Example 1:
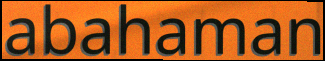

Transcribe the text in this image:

abahaman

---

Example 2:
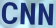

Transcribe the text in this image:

CNN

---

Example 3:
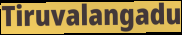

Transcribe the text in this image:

Tiruvalangadu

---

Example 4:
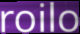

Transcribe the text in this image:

roilo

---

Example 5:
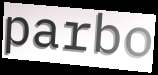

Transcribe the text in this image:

parbo